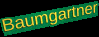
Baumgartner